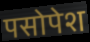
पसोपेश